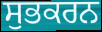
ਸੁਭਕਰਨ